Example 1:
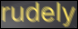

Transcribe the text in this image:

rudely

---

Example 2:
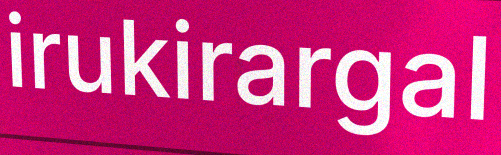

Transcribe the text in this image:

irukirargal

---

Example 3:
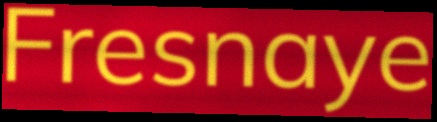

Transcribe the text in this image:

Fresnaye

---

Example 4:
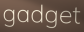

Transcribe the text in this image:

gadget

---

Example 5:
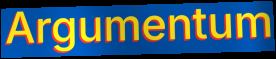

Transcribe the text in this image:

Argumentum